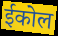
ईकोल